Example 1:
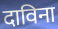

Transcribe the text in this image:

दाविना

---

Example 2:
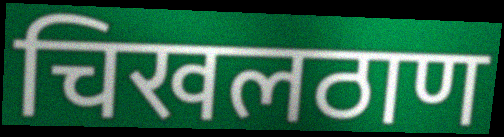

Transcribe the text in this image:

चिखलठाण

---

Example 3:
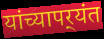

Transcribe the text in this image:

यांच्यापर्यंत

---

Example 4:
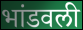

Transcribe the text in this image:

भांडवली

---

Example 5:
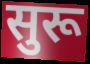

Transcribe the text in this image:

सुरू